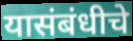
यासंबंधीचे